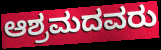
ಆಶ್ರಮದವರು